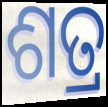
ଶତ୍ର